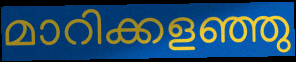
മാറിക്കളഞ്ഞു